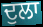
ਦੁਲਾ